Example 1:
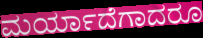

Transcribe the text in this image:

ಮರ್ಯಾದೆಗಾದರೂ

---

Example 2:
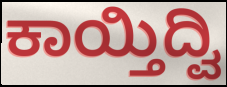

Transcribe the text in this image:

ಕಾಯ್ತಿದ್ವಿ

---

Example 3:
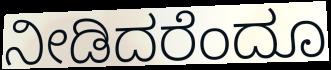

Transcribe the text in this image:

ನೀಡಿದರೆಂದೂ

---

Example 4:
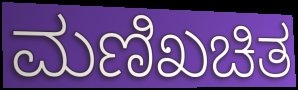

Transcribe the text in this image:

ಮಣಿಖಚಿತ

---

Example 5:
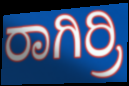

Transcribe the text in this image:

ರಾಗಿರ್ರಿ